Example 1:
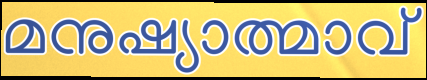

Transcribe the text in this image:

മനുഷ്യാത്മാവ്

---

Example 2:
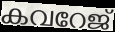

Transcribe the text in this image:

കവറേജ്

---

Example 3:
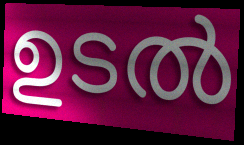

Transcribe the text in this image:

ഉടൽ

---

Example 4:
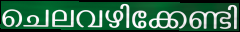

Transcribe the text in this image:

ചെലവഴിക്കേണ്ടി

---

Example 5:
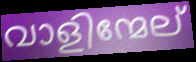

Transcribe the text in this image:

വാളിന്മേല്